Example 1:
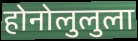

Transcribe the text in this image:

होनोलुलुला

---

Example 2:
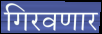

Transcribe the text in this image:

गिरवणार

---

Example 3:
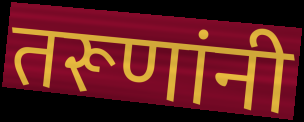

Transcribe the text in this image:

तरूणांनी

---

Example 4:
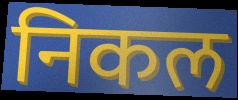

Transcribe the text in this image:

निकल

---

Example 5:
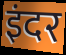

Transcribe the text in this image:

इंदर